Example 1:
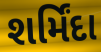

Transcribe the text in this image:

શર્મિંદા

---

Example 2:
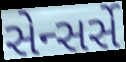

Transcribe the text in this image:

સેન્સર્સે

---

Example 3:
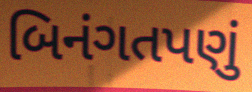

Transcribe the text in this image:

બિનંગતપણું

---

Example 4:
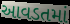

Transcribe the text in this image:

આવડતમાં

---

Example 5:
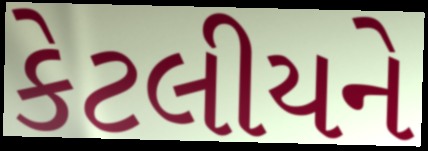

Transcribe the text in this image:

કેટલીયને